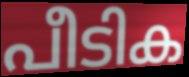
പീടിക